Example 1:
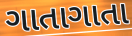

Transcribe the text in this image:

ગાતાગાતા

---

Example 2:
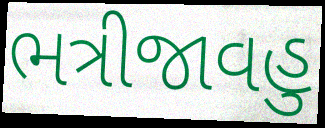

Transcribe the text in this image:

ભત્રીજાવહુ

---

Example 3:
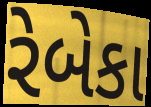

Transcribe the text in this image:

રેબેકા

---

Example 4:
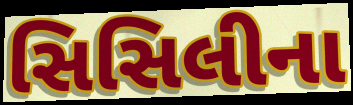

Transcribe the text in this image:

સિસિલીના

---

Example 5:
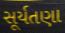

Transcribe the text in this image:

સૂર્યતણા